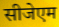
सीजेएम